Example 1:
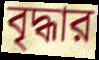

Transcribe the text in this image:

বৃদ্ধার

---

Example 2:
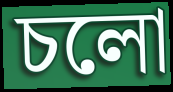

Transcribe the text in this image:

চলো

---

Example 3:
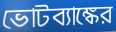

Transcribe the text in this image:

ভোটব্যাঙ্কের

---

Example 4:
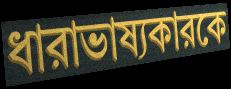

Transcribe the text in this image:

ধারাভাষ্যকারকে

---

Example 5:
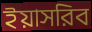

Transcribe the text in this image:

ইয়াসরিব